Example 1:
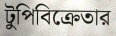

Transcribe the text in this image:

টুপিবিক্রেতার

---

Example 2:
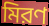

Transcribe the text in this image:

মিরণ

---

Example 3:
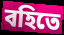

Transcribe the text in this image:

বহিতে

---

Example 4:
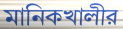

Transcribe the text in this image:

মানিকখালীর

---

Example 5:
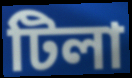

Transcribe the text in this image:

টিলা